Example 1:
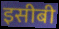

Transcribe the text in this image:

इसीबी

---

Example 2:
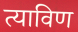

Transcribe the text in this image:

त्याविण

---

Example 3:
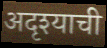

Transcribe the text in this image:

अदृश्याची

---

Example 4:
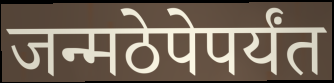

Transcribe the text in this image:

जन्मठेपेपर्यंत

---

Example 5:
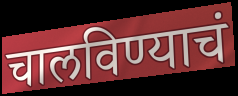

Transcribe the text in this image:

चालविण्याचं